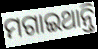
ମଗାଇଥାନ୍ତି